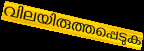
വിലയിരുത്തപ്പെടുക